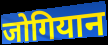
जोगियान